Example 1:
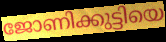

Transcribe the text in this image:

ജോണിക്കുട്ടിയെ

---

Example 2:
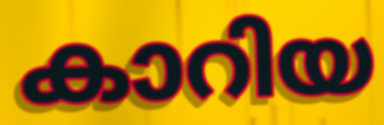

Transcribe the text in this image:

കാറിയ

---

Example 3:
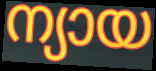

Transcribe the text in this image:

ന്യായ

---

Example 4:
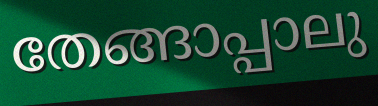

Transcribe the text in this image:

തേങ്ങാപ്പാലു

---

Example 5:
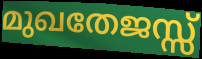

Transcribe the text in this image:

മുഖതേജസ്സ്